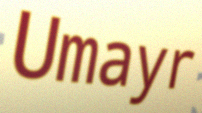
Umayr